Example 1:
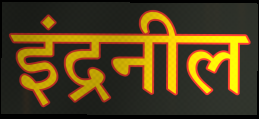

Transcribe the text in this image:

इंद्रनील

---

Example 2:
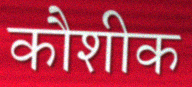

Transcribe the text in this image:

कौशीक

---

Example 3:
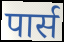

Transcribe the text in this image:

पार्स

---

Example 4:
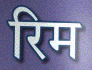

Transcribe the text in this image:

रिम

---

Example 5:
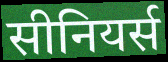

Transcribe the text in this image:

सीनियर्स